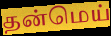
தன்மெய்